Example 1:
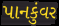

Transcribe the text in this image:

પાનકુંવર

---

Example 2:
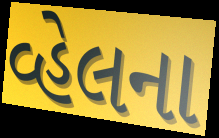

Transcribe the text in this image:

વ્હેલના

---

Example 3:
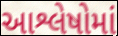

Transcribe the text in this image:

આશ્લેષોમાં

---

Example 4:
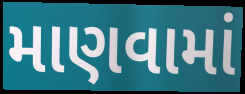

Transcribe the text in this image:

માણવામાં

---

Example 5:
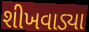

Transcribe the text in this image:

શીખવાડ્યા